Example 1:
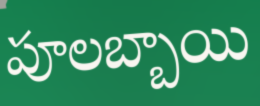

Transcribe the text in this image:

పూలబ్బాయి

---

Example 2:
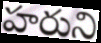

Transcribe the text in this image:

హరుని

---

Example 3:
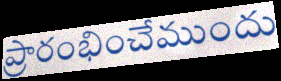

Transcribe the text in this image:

ప్రారంభించేముందు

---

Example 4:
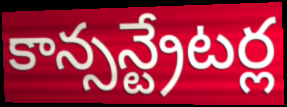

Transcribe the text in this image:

కాన్సన్ట్రేటర్ల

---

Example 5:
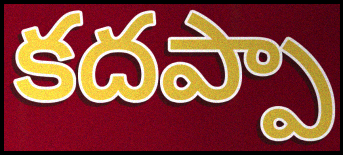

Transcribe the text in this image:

కదప్పా